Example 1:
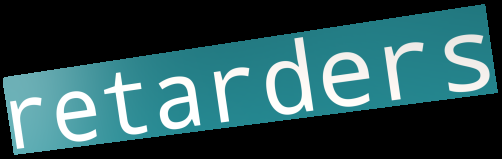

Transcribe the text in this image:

retarders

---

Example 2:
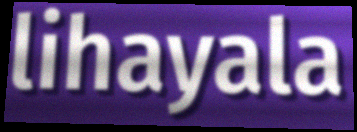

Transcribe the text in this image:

lihayala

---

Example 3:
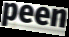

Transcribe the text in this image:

peen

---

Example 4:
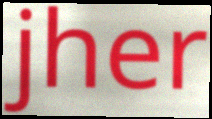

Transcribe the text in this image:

jher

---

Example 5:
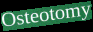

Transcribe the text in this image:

Osteotomy